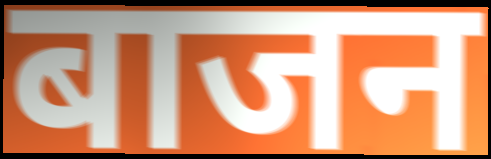
बाजन